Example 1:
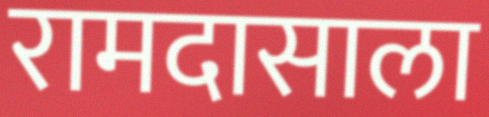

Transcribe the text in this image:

रामदासाला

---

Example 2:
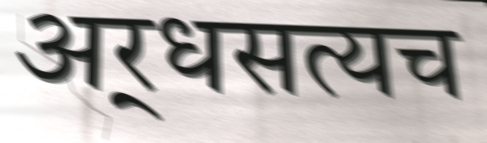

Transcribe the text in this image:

अर्धसत्यच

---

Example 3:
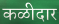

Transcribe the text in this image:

कळीदार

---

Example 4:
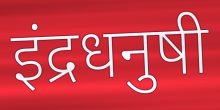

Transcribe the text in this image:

इंद्रधनुषी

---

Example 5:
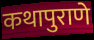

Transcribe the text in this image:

कथापुराणे